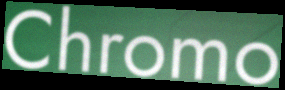
Chromo